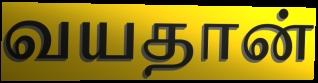
வயதான்